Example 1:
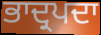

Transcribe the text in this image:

ਭਾਦ੍ਰਪਦਾ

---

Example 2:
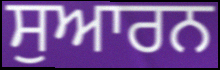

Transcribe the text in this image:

ਸੁਆਰਨ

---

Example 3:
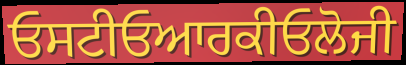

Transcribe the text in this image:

ਓਸਟੀਓਆਰਕੀਓਲੋਜੀ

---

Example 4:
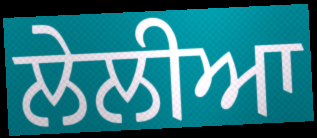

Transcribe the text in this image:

ਲੇਲੀਆ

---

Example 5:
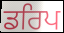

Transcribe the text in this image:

ਡਰਿਪ